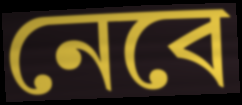
নেবে